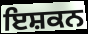
ਇਸ਼ਕਨ